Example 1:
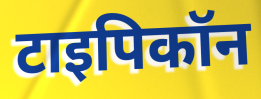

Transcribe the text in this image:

टाइपिकॉन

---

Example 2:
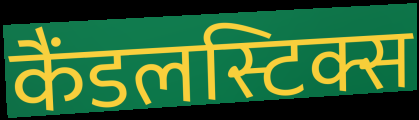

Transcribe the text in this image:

कैंडलस्टिक्स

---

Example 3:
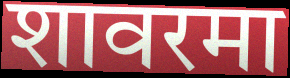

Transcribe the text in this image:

शावरमा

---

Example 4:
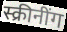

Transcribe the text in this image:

स्क्रीनींग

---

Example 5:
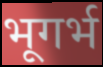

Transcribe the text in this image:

भूगर्भ